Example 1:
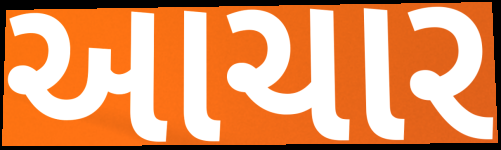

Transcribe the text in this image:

આચાર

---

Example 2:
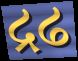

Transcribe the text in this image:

દ્રઢ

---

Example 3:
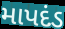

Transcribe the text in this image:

માપદંડ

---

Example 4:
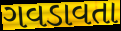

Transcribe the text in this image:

ગવડાવતા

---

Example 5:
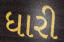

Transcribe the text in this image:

ધારી